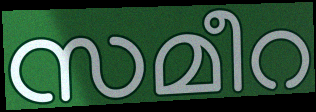
സമീറ